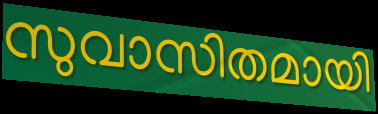
സുവാസിതമായി